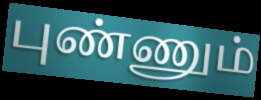
புண்ணும்